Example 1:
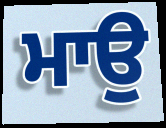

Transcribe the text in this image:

ਮਾਉ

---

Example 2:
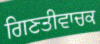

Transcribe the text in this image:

ਗਿਣਤੀਵਾਚਕ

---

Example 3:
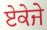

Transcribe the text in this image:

ਏਕੇਜੇ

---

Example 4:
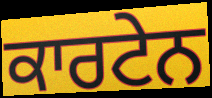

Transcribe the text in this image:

ਕਾਰਟੇਨ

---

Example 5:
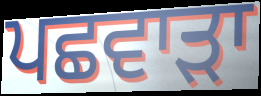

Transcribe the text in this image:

ਪਛਵਾੜਾ